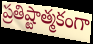
ప్రతిష్టాత్మకంగా